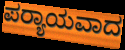
ಪರ‍್ಯಾಯವಾದ